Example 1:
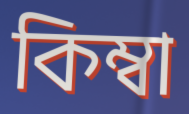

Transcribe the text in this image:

কিম্বা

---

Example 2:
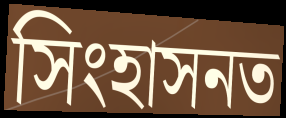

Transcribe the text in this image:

সিংহাসনত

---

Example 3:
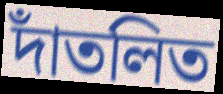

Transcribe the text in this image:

দাঁতলিত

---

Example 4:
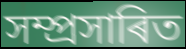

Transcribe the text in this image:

সম্প্ৰসাৰিত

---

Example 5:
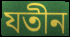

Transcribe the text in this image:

যতীন